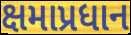
ક્ષમાપ્રધાન